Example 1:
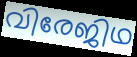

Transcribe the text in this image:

വിരേജിഥ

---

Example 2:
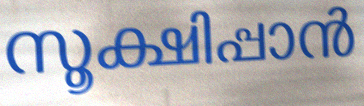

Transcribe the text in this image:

സൂക്ഷിപ്പാൻ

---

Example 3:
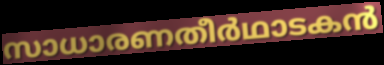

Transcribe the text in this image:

സാധാരണതീർഥാടകൻ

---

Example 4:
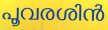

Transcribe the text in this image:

പൂവരശിൻ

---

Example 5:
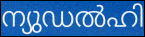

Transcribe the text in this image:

ന്യുഡൽഹി